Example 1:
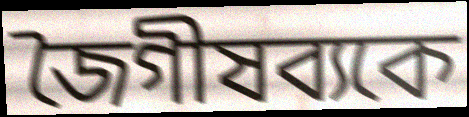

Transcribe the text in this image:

জৈগীষব্যকে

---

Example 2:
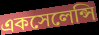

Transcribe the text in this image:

একসেলেন্সি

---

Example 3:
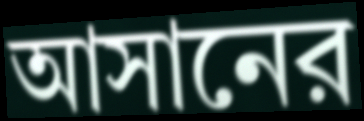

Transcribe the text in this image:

আসানের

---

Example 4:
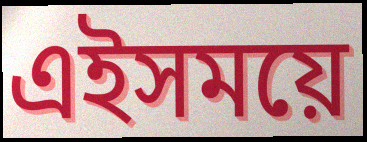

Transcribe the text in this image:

এইসময়ে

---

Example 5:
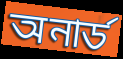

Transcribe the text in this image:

অনার্ড